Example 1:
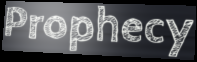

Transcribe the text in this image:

Prophecy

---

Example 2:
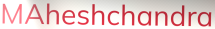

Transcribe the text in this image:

MAheshchandra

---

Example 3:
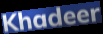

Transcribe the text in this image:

Khadeer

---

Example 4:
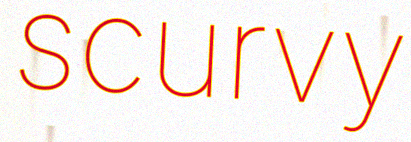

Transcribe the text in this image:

scurvy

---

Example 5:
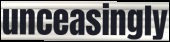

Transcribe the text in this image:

unceasingly